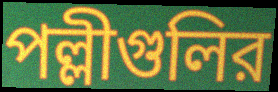
পল্লীগুলির